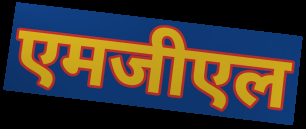
एमजीएल